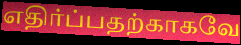
எதிர்ப்பதற்காகவே